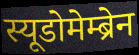
स्यूडोमेम्ब्रेन